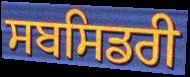
ਸਬਸਿਡਰੀ